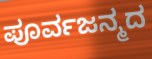
ಪೂರ್ವಜನ್ಮದ